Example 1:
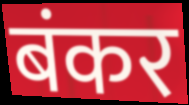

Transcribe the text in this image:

बंकर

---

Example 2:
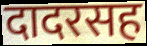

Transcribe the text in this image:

दादरसह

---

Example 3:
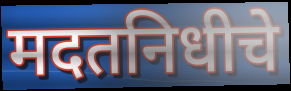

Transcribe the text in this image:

मदतनिधीचे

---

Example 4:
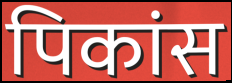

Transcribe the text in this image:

पिकांस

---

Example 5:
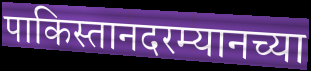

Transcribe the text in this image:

पाकिस्तानदरम्यानच्या